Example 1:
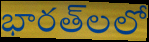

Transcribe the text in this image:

భారత్‌లలో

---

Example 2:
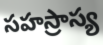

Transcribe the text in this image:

సహస్రాస్య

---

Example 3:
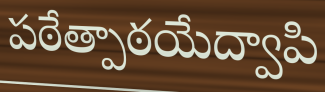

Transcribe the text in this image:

పఠేత్పాఠయేద్వాపి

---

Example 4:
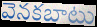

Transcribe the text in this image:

వెనకబాటు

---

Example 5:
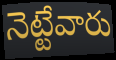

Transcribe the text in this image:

నెట్టేవారు